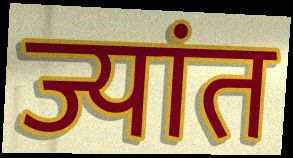
ज्यांत